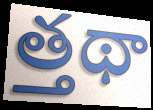
త్తథా